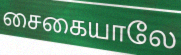
சைகையாலே